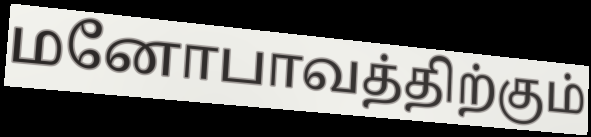
மனோபாவத்திற்கும்